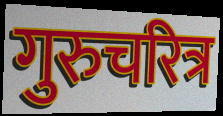
गुरुचरित्र